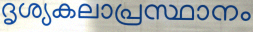
ദൃശ്യകലാപ്രസ്ഥാനം